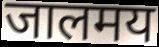
जालमय